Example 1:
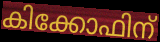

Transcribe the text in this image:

കിക്കോഫിന്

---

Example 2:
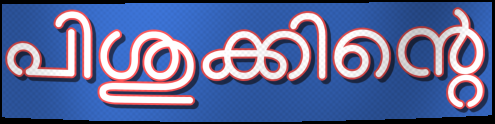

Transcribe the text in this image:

പിശുക്കിന്റെ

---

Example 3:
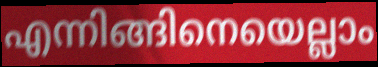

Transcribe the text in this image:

എന്നിങ്ങിനെയെല്ലാം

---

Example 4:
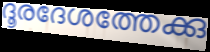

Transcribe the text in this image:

ദൂരദേശത്തേക്കു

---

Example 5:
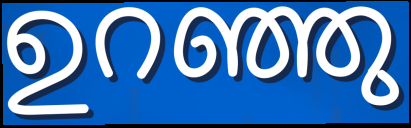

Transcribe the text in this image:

ഉറഞ്ഞു